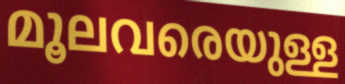
മൂലവരെയുള്ള